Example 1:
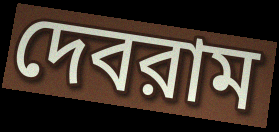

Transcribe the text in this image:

দেবরাম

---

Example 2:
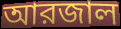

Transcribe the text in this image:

আরজাল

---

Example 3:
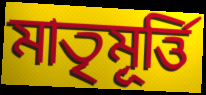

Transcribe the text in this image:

মাতৃমূর্ত্তি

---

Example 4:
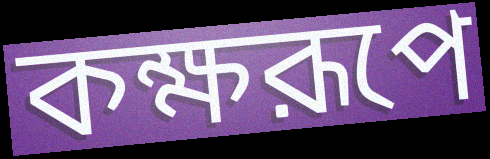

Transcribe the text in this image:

কক্ষরূপে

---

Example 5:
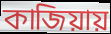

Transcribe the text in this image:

কাজিয়ায়